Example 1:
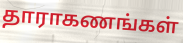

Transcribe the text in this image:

தாராகணங்கள்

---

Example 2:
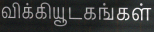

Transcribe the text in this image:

விக்கியூடகங்கள்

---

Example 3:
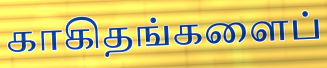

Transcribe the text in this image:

காகிதங்களைப்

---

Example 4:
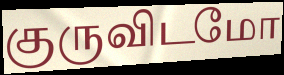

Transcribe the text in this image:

குருவிடமோ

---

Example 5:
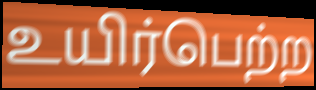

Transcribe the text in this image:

உயிர்பெற்ற